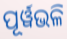
ପୂର୍ୱଭଳି